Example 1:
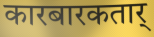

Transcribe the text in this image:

कारबारकतार्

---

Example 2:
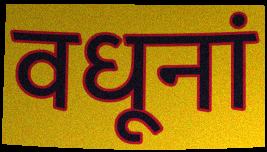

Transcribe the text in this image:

वधूनां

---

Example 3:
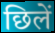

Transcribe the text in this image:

छिलें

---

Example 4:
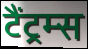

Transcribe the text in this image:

टैंट्रम्स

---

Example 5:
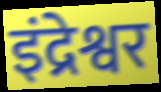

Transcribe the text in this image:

इंद्रेश्वर